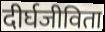
दीर्घजीविता